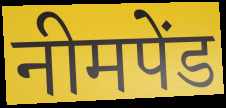
नीमपेंड